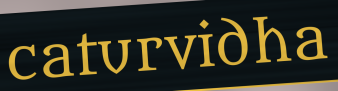
caturvidha